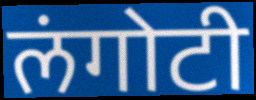
लंगोटी